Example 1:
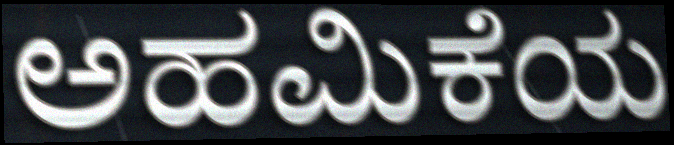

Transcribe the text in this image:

ಅಹಮಿಕೆಯ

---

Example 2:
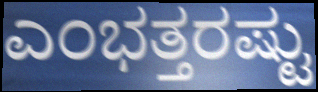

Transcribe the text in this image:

ಎಂಭತ್ತರಷ್ಟು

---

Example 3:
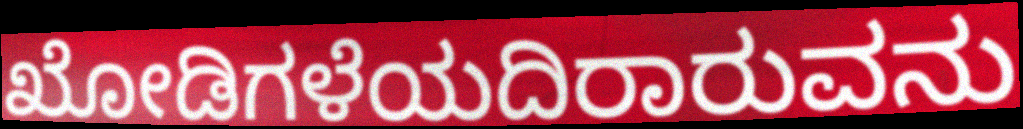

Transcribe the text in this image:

ಖೋಡಿಗಳೆಯದಿರಾರುವನು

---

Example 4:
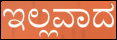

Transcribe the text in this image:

ಇಲ್ಲವಾದ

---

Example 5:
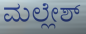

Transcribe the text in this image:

ಮಲ್ಲೇಶ್